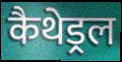
कैथेड्रल